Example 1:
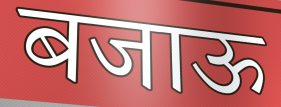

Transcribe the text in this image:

बजाऊ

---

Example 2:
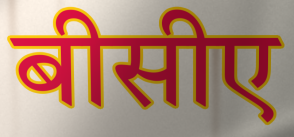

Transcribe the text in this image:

बीसीए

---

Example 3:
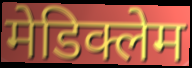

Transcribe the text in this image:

मेडिक्लेम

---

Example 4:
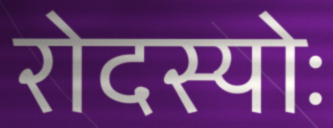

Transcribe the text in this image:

रोदस्योः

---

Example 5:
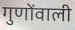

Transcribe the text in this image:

गुणोंवाली